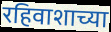
रहिवाशाच्या